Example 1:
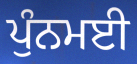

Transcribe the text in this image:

ਪੁੰਨਮਈ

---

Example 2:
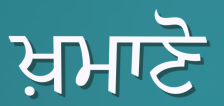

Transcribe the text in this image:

ਖ਼ਮਾਣੋ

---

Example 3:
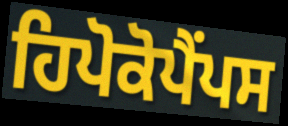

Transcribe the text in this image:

ਹਿਪੋਕੋਪੈਂਪਸ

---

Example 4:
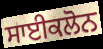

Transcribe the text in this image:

ਸਾਈਕਲੋਨ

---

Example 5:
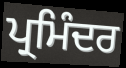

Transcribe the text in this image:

ਪ੍ਰਮਿੰਦਰ